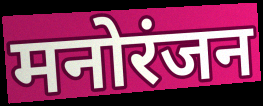
मनोरंजन